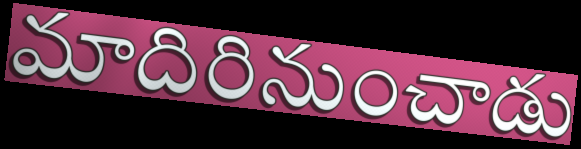
మాదిరినుంచాడు